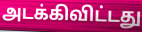
அடக்கிவிட்டது